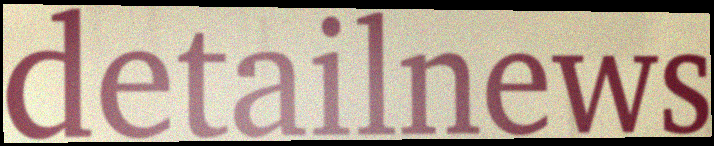
detailnews